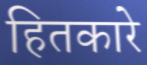
हितकारे